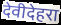
देवीदेहरा